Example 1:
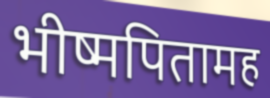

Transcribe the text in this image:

भीष्मपितामह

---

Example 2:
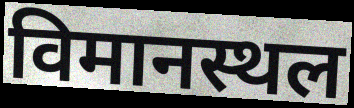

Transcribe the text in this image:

विमानस्थल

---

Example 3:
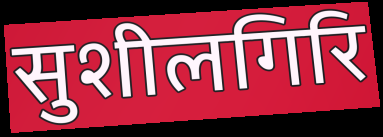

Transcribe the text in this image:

सुशीलगिरि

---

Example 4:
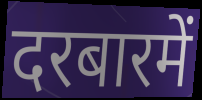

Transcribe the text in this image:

दरबारमें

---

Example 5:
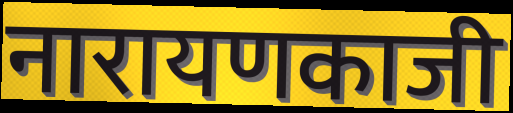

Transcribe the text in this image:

नारायणकाजी